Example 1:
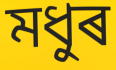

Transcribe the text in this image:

মধুৰ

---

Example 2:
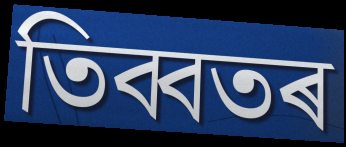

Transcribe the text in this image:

তিব্বতৰ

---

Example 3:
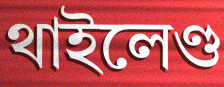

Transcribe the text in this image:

থাইলেণ্ড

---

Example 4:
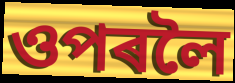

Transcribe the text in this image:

ওপৰলৈ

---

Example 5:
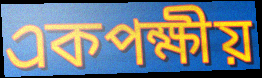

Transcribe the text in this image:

একপক্ষীয়